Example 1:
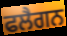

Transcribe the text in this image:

ਫਲੈਗਨ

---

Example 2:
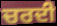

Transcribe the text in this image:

ਚਰਦੀ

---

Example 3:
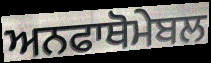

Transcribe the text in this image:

ਅਨਫਾਥੋਮੇਬਲ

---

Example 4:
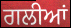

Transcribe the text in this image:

ਗਲੀਆਂ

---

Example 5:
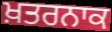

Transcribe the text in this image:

ਖ਼ਤਰਨਾਕ